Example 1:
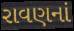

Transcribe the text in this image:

રાવણનાં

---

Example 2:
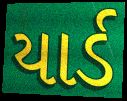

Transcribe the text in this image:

યાર્ડ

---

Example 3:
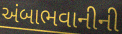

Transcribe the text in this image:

અંબાભવાનીની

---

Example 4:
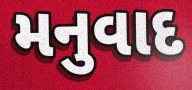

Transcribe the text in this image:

મનુવાદ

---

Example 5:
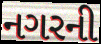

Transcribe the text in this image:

નગરની